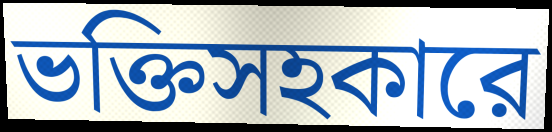
ভক্তিসহকারে